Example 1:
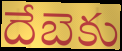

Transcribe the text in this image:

దేబెకు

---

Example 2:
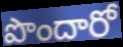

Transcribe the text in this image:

పొందారో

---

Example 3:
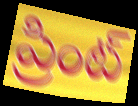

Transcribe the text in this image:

ప్రింట్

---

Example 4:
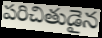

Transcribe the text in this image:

పరిచితుడైన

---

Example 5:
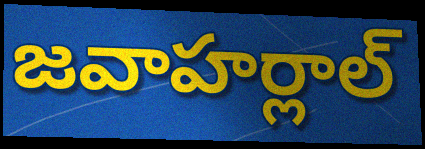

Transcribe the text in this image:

జవాహర్లాల్